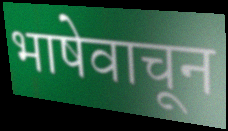
भाषेवाचून